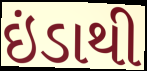
ઇંડાથી